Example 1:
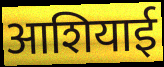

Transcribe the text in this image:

आशियाई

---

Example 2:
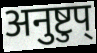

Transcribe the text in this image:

अनुष्टुप्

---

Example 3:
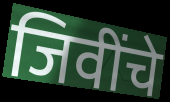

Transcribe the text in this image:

जिवींचे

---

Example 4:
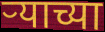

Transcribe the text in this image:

ऱ्याच्या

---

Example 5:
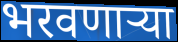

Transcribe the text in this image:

भरवणाऱ्या